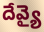
దేవ్యై